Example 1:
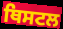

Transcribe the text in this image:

ਥਿਸਟਲ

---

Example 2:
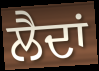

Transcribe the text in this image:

ਲੈਦਾਂ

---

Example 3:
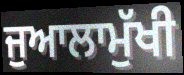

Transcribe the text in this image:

ਜੁਆਲਾਮੁੱਖੀ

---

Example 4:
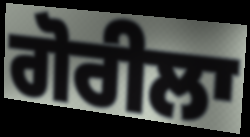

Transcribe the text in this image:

ਗੋਰੀਲਾ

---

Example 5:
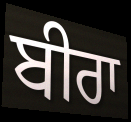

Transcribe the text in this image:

ਬੀਰਾ